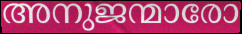
അനുജന്മാരോ